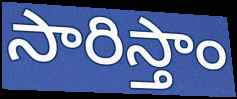
సారిస్తాం